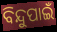
ବିନ୍ଦୁପାଇଁ